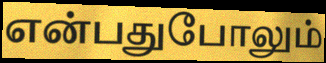
என்பதுபோலும்